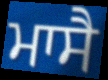
ਮਾਸੈ